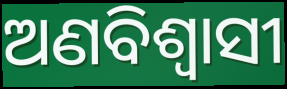
ଅଣବିଶ୍ୱାସୀ